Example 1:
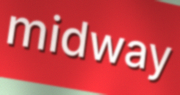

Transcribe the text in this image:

midway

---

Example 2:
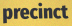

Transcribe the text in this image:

precinct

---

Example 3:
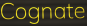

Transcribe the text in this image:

Cognate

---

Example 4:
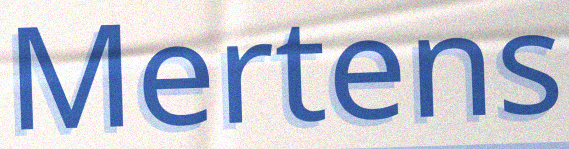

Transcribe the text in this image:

Mertens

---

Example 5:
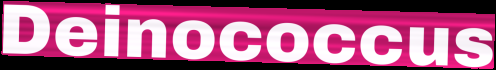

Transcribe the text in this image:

Deinococcus